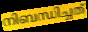
നിബന്ധിച്ചത്